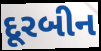
દૂરબીન